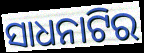
ସାଧନାଟିର